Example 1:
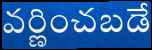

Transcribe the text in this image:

వర్ణించబడే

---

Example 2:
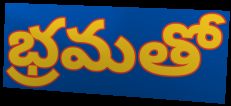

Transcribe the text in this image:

భ్రమతో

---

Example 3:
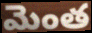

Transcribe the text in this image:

మెంత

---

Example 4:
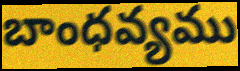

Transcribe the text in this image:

బాంధవ్యము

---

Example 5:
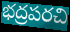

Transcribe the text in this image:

భద్రపరచి